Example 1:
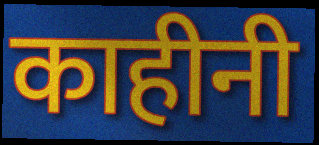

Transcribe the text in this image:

काहीनी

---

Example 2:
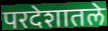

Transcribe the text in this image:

परदेशातले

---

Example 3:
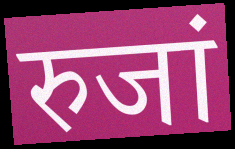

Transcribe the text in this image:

रुजां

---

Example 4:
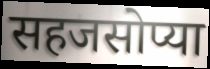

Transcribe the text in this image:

सहजसोप्या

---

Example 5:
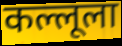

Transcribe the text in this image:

कल्लूला